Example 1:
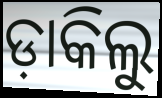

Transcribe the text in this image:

ଡ଼ାକିଲୁ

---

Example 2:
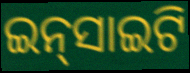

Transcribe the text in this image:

ଇନ୍‌ସାଇଟି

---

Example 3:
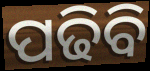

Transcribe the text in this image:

ପଢିବି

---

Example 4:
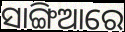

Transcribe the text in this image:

ସାଙ୍ଗିଆରେ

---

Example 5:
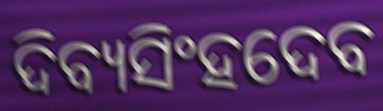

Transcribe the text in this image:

ଦିବ୍ୟସିଂହଦେବ